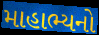
માહાભ્યનો